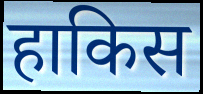
हाकिस